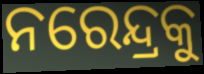
ନରେନ୍ଦ୍ରକୁ